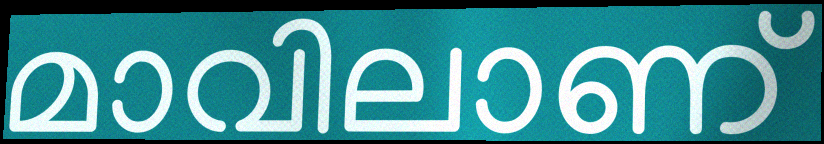
മാവിലാണ്